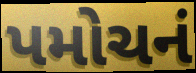
પમોચનં